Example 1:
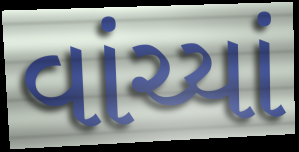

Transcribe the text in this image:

વાંચ્યાં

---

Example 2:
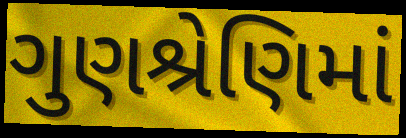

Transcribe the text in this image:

ગુણશ્રેણિમાં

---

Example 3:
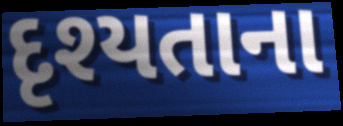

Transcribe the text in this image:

દૃશ્યતાના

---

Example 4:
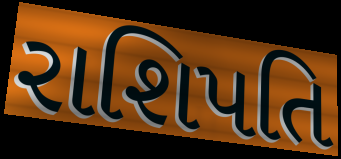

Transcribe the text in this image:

રાશિપતિ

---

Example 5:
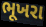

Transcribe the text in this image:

ભૂખરા